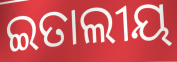
ଇତାଲୀୟ